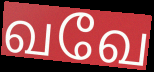
வவே